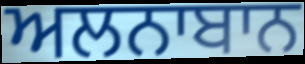
ਅਲਨਾਬਾਨ